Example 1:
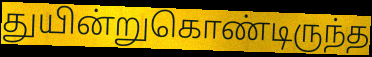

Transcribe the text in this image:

துயின்றுகொண்டிருந்த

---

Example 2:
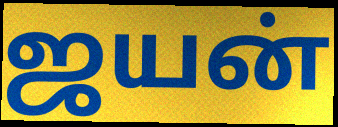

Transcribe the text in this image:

ஜயன்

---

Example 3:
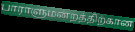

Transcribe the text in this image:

பாராளுமன்றத்திற்கான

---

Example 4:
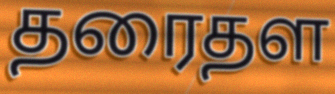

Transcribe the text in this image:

தரைதள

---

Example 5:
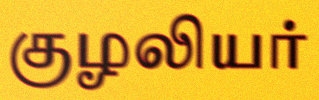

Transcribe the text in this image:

குழலியர்